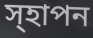
স্হাপন